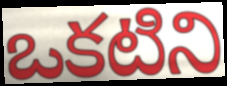
ఒకటిని